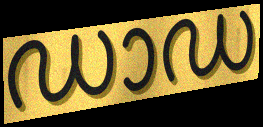
ഡാഡ